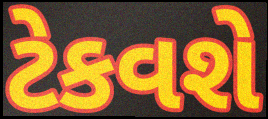
ટેકવશે